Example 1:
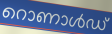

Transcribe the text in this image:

റൊണാൾഡ്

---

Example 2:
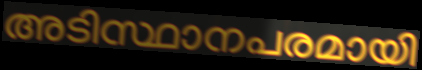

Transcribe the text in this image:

അടിസ്ഥാനപരമായി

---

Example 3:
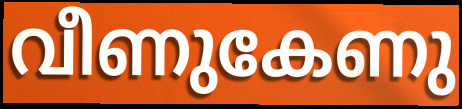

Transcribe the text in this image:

വീണുകേണു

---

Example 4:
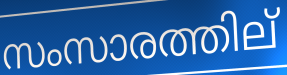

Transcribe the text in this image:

സംസാരത്തില്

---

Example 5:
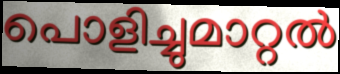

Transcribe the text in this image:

പൊളിച്ചുമാറ്റൽ